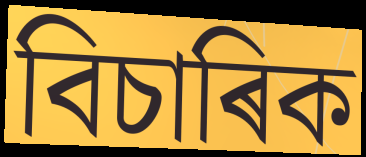
বিচাৰিক